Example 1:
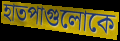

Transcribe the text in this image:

হাতপাগুলোকে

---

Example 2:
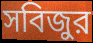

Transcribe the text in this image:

সবিজুর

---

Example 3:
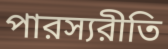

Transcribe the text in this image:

পারস্যরীতি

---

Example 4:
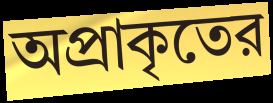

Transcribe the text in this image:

অপ্রাকৃতের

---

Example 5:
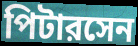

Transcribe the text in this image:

পিটারসেন